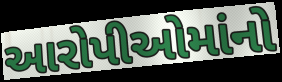
આરોપીઓમાંનો